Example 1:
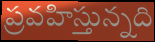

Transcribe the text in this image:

ప్రవహిస్తున్నది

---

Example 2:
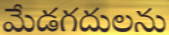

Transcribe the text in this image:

మేడగదులను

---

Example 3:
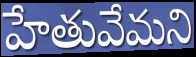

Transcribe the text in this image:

హేతువేమని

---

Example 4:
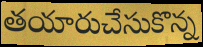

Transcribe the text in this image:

తయారుచేసుకొన్న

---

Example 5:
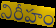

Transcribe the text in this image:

నిరీహం